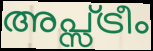
അപ്സ്ട്രീം